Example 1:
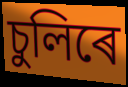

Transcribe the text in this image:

চুলিৰে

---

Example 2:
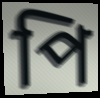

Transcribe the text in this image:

পি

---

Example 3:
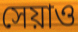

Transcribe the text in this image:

সেয়াও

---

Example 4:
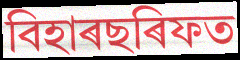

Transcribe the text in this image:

বিহাৰছৰিফত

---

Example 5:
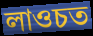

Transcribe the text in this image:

লাওচত